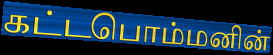
கட்டபொம்மனின்